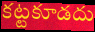
కట్టకూడదు